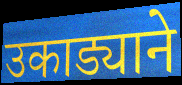
उकाड्याने